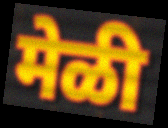
मेळी